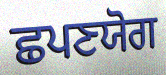
ਛਪਣਯੋਗ